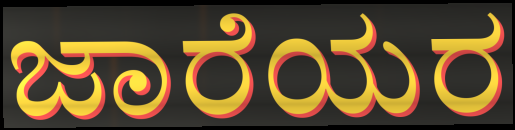
ಜಾರೆಯರ